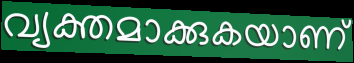
വ്യക്തമാക്കുകയാണ്